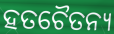
ହତଚୈତନ୍ୟ